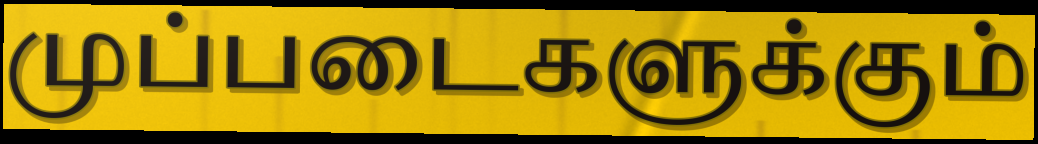
முப்படைகளுக்கும்